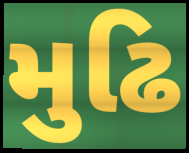
મુઢિ